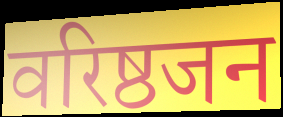
वरिष्ठजन